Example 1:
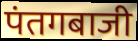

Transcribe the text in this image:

पंतगबाजी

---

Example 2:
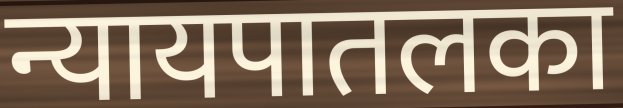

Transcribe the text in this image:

न्यायपातलका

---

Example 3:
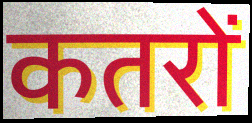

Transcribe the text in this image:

कतरों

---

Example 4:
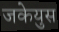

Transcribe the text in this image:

जकेयुस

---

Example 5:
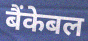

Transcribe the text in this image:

बैंकेबल